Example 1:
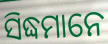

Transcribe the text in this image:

ସିଦ୍ଧମାନେ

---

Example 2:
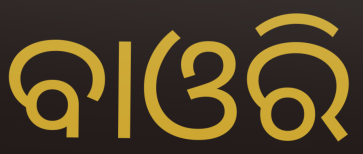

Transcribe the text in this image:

ବାଓରି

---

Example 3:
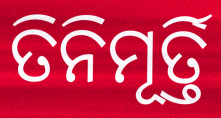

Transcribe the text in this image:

ତିନିମୂର୍ତ୍ତି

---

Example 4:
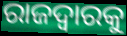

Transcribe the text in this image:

ରାଜଦ୍ୱାରକୁ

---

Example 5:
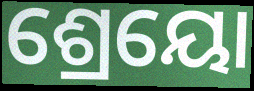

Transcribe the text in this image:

ଶ୍ରେୟୋ